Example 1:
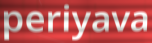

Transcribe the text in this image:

periyava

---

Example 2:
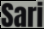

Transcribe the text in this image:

Sari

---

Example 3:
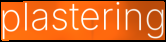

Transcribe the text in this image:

plastering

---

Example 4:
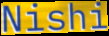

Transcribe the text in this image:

Nishi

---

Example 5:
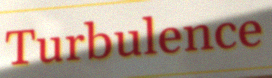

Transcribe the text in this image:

Turbulence